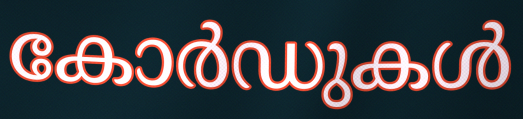
കോർഡുകൾ